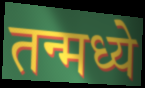
तन्मध्ये